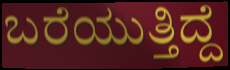
ಬರೆಯುತ್ತಿದ್ದೆ